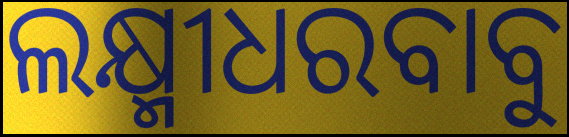
ଲକ୍ଷ୍ମୀଧରବାବୁ